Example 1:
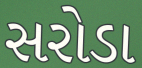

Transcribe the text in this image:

સરોડા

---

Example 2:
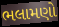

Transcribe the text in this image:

ભલામણો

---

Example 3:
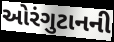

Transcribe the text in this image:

ઓરંગુટાનની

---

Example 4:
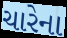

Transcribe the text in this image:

ચારેના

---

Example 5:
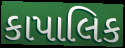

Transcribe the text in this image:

કાપાલિક